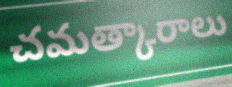
చమత్కారాలు